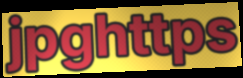
jpghttps